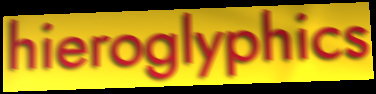
hieroglyphics